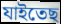
যাইতেছ